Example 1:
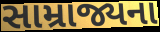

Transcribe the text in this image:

સામ્રાજ્યના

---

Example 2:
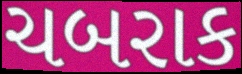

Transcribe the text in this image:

ચબરાક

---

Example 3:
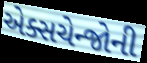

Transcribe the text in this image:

એક્સચેન્જોની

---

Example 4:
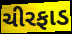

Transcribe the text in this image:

ચીરફાડ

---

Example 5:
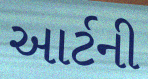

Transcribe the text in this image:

આર્ટની